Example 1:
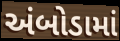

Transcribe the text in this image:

અંબોડામાં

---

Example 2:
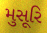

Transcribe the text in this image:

મુસૂરિ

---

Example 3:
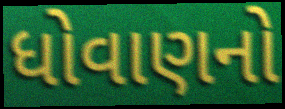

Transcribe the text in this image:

ધોવાણનો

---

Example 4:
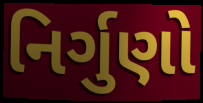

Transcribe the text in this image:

નિર્ગુણો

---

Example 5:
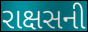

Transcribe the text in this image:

રાક્ષસની